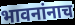
भावनांनाच